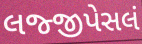
લજ્જીપેસલં